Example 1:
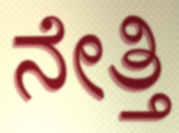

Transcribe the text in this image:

ನೇತ್ತಿ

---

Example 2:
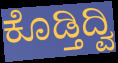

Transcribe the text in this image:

ಕೊಡ್ತಿದ್ವಿ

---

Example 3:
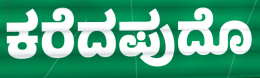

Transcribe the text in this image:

ಕರೆದಪುದೊ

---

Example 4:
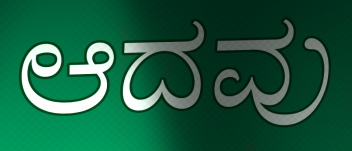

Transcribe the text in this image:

ಆದವು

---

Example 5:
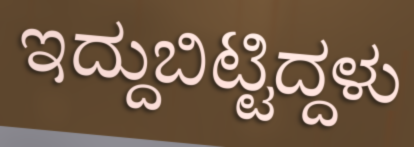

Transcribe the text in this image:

ಇದ್ದುಬಿಟ್ಟಿದ್ದಳು